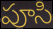
పూసి